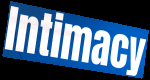
Intimacy